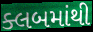
ક્લબમાંથી